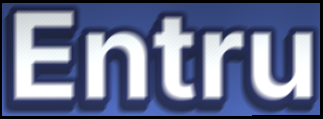
Entru